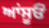
ਆਂਸੂਓਂ